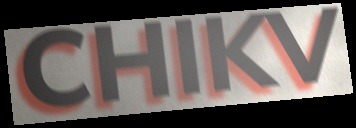
CHIKV